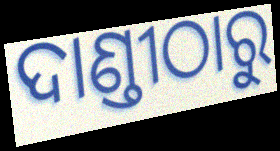
ଦାଣ୍ଡୀଠାରୁ